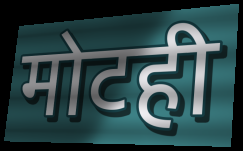
मोटही